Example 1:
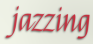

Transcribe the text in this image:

jazzing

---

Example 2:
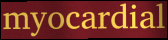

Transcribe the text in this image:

myocardial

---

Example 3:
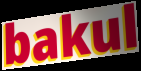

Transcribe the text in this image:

bakul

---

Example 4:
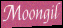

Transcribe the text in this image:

Moongil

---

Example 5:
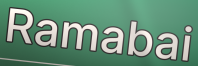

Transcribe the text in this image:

Ramabai